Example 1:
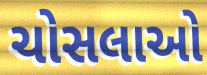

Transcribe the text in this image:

ચોસલાઓ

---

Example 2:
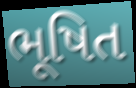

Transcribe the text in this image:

ભૂષિત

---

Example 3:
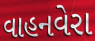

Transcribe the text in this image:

વાહનવેરા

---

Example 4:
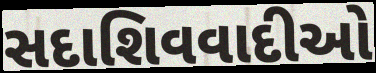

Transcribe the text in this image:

સદાશિવવાદીઓ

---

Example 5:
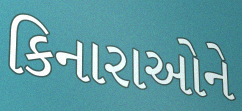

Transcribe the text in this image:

કિનારાઓને